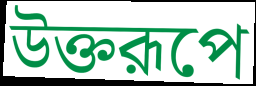
উক্তরূপে